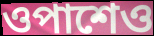
ওপাশেও